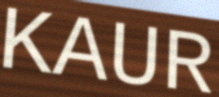
KAUR